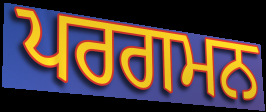
ਪਰਗਮਨ